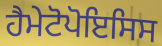
ਹੈਮੇਟੋਪੋਇਸਿਸ